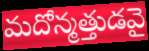
మదోన్మత్తుడవై